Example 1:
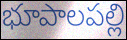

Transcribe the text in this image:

భూపాలపల్లి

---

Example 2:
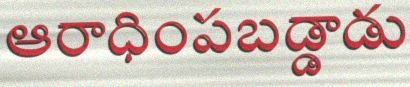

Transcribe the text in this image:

ఆరాధింపబడ్డాడు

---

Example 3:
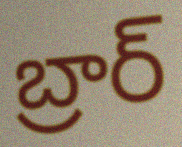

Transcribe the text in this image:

బ్రార్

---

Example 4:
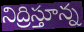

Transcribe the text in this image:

నిద్రిస్తూన్న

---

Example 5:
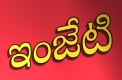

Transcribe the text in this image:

ఇంజేటి